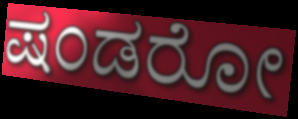
ಷಂಡರೋ